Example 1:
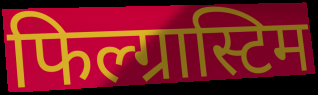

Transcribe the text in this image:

फिल्ग्रास्टिम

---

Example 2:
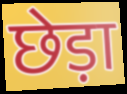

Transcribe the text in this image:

छेड़ा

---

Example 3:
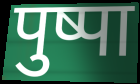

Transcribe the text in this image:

पुष्पा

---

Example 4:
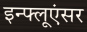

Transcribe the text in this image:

इन्फ्लूएंसर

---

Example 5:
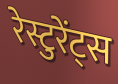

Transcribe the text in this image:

रेस्टुरेंट्स